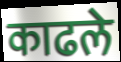
काढले